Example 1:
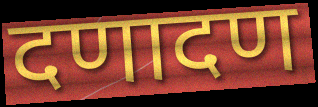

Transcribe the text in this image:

दणादण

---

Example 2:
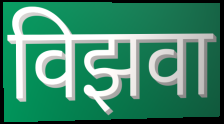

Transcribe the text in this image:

विझवा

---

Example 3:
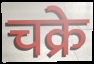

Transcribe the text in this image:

चक्रे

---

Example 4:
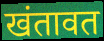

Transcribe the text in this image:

खंतावत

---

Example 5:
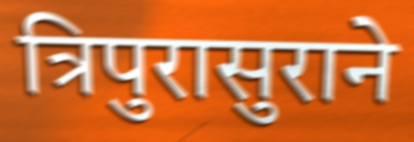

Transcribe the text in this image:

त्रिपुरासुराने